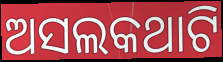
ଅସଲକଥାଟି